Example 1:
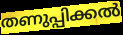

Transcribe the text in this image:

തണുപ്പിക്കൽ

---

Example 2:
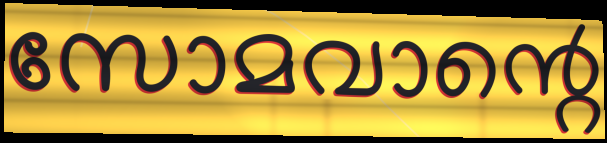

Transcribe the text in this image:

സോമവാന്റെ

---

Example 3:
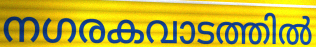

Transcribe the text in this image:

നഗരകവാടത്തിൽ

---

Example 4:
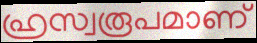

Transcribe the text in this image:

ഹ്രസ്വരൂപമാണ്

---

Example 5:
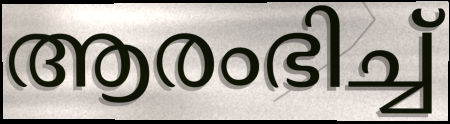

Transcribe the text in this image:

ആരംഭിച്ച്